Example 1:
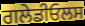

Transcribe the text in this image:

ਗਲੇਡੀਓਲਸ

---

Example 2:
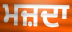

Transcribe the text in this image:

ਮਜ਼ਦਾ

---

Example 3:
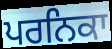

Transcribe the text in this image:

ਪਰਨਿਕਾ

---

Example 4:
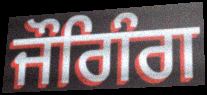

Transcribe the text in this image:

ਜੌਗਿੰਗ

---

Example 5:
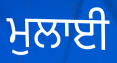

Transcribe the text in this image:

ਮੁਲਾਈ